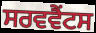
ਸਰਵਵੈਂਟਸ